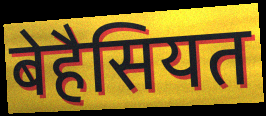
बेहैसियत